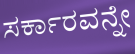
ಸರ್ಕಾರವನ್ನೇ